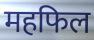
महफिल